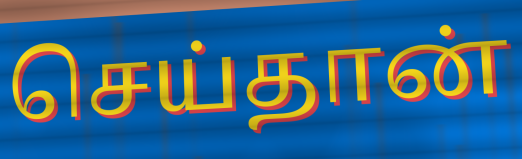
செய்தான்